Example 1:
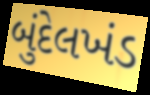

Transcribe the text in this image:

બુંદેલખંડ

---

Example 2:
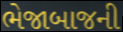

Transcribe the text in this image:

ભેજાબાજની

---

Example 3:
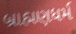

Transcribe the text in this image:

બ્રાહ્મણધર્મ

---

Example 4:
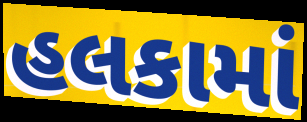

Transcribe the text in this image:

હલકામાં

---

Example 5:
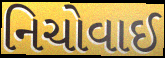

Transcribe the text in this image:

નિચોવાઈ